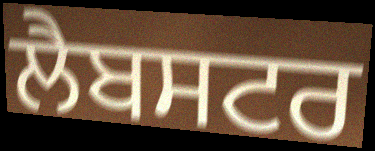
ਲੈਬਸਟਰ